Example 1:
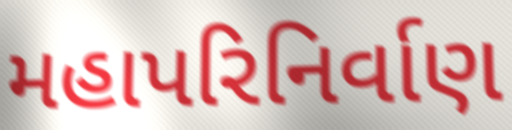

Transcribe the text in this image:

મહાપરિનિર્વાણ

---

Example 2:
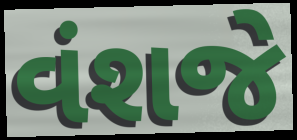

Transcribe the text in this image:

વંશજે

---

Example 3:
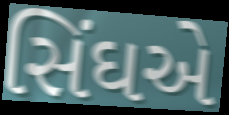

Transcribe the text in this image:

સિંઘએ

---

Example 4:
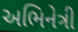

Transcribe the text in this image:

અભિનેત્રી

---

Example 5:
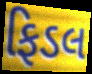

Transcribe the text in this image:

ફિડલ